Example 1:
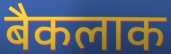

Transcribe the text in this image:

बैकलाक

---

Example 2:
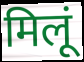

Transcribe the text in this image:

मिलूं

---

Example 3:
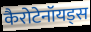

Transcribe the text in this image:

कैरोटेनॉयड्स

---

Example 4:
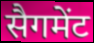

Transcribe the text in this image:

सैगमेंट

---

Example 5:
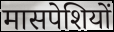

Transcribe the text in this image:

मासपेशियों